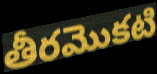
తీరమొకటి